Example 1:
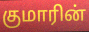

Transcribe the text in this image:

குமாரின்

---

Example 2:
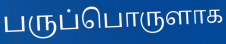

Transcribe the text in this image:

பருப்பொருளாக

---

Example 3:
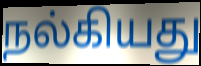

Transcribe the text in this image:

நல்கியது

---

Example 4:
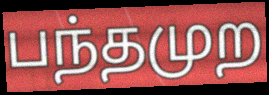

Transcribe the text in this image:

பந்தமுற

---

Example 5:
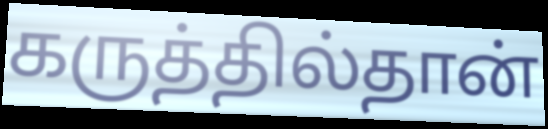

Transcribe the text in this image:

கருத்தில்தான்